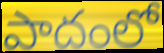
పాదంలో